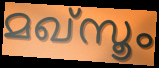
മഖ്സൂം